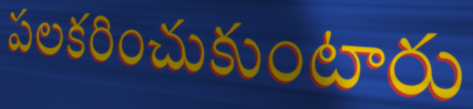
పలకరించుకుంటారు